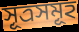
সূত্ৰসমূহ